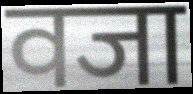
वजा